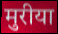
मुरीया